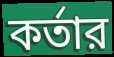
কর্তার